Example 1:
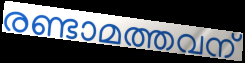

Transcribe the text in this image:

രണ്ടാമത്തവന്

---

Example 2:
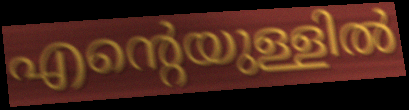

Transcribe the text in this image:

എന്റെയുള്ളിൽ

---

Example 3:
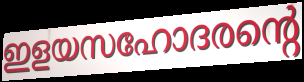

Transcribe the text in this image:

ഇളയസഹോദരന്റെ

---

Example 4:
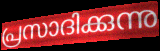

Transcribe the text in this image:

പ്രസാദിക്കുന്നു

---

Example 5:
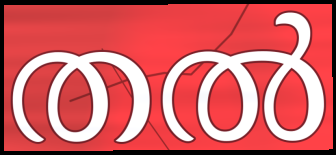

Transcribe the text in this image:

തൽ